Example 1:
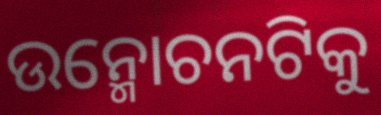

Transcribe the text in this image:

ଉନ୍ମୋଚନଟିକୁ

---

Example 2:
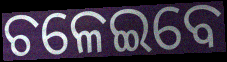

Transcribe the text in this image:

ଚଳେଇବେ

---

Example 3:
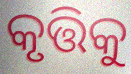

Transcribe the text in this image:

କୃତ୍ତିକୁ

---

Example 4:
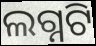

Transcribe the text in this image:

ଲଗ୍ନଟି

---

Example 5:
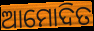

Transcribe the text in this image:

ଆମୋଦିତ